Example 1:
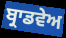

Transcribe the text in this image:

ਬ੍ਰਾਡਵੇਅ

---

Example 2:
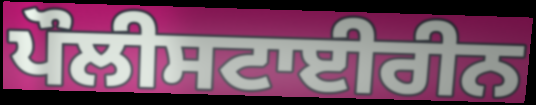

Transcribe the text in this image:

ਪੌਲੀਸਟਾਈਰੀਨ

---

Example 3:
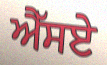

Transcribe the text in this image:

ਐੱਸਏ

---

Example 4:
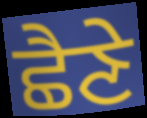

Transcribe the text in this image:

ਛੈਣੇ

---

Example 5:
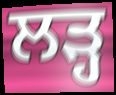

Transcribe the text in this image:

ਲੜ੍ਹ